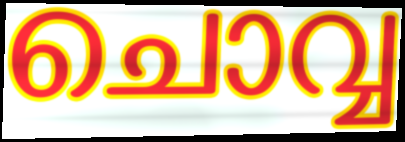
ചൊവ്വ